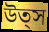
উত্স